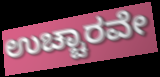
ಉಚ್ಚಾರವೇ